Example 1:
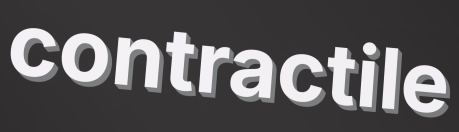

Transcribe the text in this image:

contractile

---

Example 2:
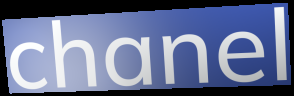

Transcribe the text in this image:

chanel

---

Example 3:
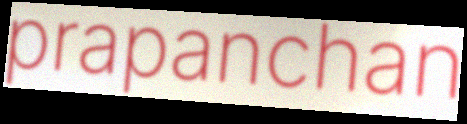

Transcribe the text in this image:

prapanchan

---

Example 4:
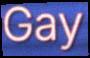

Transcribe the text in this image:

Gay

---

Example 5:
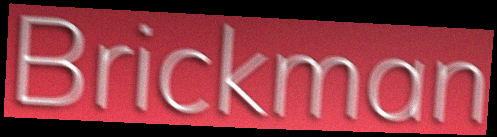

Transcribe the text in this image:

Brickman